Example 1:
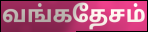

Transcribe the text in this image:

வங்கதேசம்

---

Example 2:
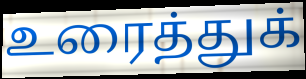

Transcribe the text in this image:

உரைத்துக்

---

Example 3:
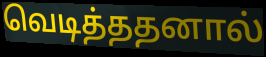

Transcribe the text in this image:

வெடித்ததனால்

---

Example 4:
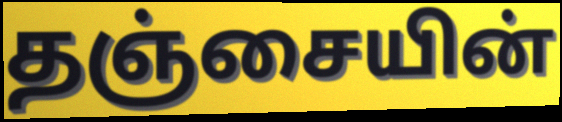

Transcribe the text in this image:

தஞ்சையின்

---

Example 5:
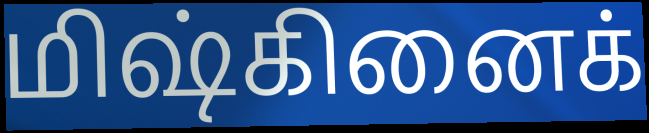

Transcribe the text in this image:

மிஷ்கினைக்